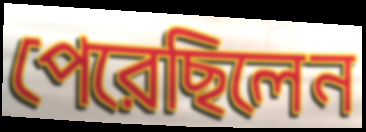
পেরেছিলেন